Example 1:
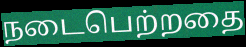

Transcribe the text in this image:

நடைபெற்றதை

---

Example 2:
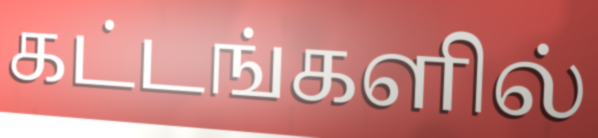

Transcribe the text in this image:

கட்டங்களில்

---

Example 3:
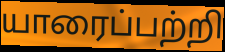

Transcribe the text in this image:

யாரைப்பற்றி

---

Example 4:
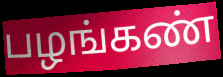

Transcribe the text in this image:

பழங்கண்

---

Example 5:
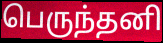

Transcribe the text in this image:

பெருந்தனி